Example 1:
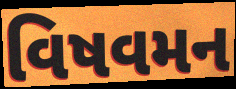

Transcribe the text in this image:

વિષવમન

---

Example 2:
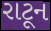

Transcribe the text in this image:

રાટૂન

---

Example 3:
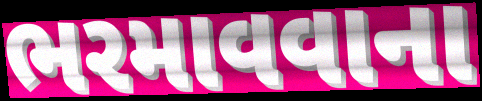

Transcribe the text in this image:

ભરમાવવાના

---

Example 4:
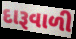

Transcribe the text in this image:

દારૂવાળી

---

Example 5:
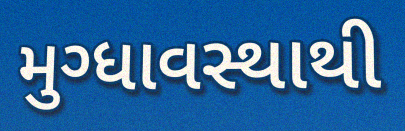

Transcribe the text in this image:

મુગ્ધાવસ્થાથી